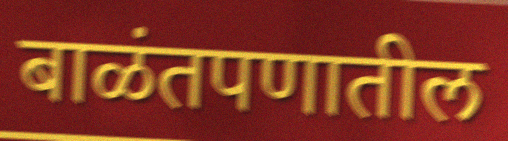
बाळंतपणातील